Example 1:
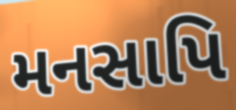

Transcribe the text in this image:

મનસાપિ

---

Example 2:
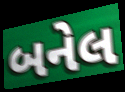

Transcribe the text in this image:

બનેલ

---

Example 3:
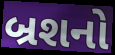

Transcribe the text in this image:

બ્રશનો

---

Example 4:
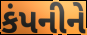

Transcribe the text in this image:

કંપનીને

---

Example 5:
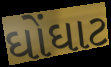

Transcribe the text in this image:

ઘોંઘાટ